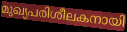
മുഖ്യപരിശീലകനായി